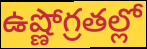
ఉష్ణోగ్రతల్లో